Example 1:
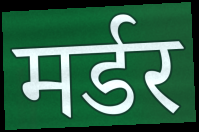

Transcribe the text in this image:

मर्डर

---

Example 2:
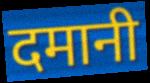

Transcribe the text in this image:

दमानी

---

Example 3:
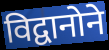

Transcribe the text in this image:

विद्वानोने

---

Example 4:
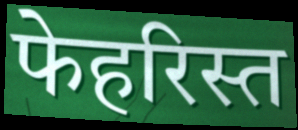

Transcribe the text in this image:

फेहरिस्‍त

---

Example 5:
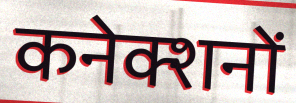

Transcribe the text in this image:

कनेक्शनों